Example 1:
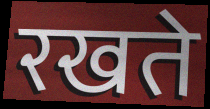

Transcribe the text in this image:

रखते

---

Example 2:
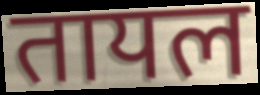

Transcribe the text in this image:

तायल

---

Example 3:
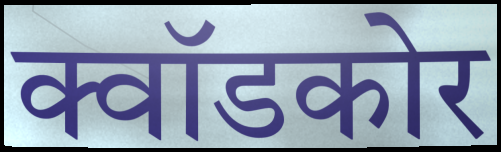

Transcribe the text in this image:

क्वॉडकोर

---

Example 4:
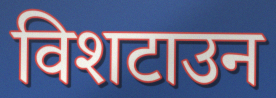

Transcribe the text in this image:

विशटाउन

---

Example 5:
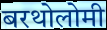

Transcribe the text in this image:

बरथोलोमी